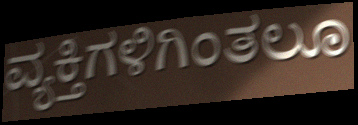
ವ್ಯಕ್ತಿಗಳಿಗಿಂತಲೂ